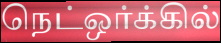
நெட்ஒர்க்கில்